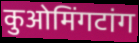
कुओमिंगटांग